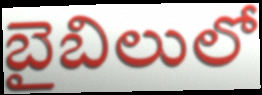
బైబిలులో